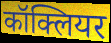
कॉक्लियर